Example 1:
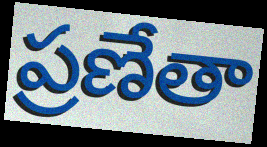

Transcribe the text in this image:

ప్రణేతా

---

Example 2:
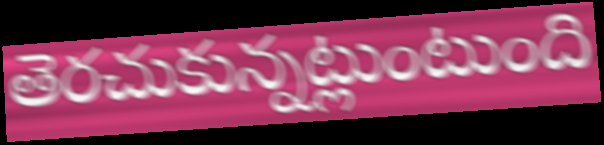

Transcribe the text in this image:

తెరచుకున్నట్లుంటుంది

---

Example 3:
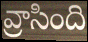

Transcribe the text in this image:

వ్రాసింది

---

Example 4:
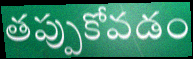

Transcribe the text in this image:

తప్పుకోవడం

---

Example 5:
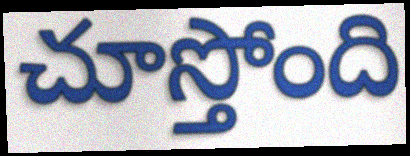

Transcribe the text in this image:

చూస్తోంది